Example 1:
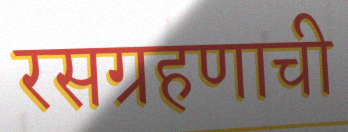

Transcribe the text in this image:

रसग्रहणाची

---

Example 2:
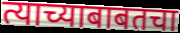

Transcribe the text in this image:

त्याच्याबाबतचा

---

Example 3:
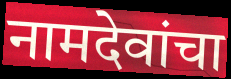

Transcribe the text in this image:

नामदेवांचा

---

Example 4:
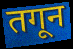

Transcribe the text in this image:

तगून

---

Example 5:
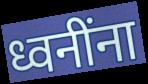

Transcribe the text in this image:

ध्वनींना